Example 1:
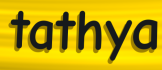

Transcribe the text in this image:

tathya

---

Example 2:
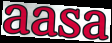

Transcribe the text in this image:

aasa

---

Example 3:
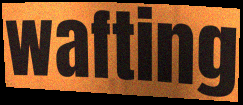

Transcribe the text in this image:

wafting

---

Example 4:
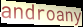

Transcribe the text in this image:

androany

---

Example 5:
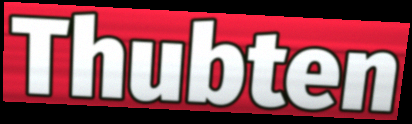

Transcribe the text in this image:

Thubten